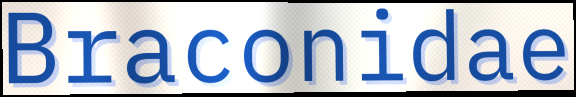
Braconidae